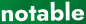
notable